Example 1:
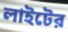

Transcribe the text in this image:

লাইটের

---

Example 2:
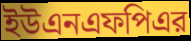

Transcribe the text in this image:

ইউএনএফপিএর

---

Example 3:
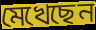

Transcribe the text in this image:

মেখেছেন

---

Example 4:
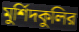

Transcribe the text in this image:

মুর্শিদকুলির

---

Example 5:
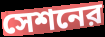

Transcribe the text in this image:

সেশনের